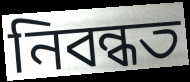
নিবন্ধত